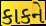
કાકને